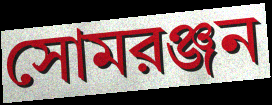
সোমরঞ্জন